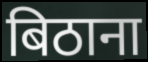
बिठाना